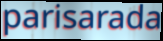
parisarada